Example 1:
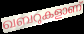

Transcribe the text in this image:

ഖബറുകളാണ്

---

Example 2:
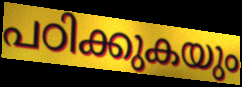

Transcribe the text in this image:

പഠിക്കുകയും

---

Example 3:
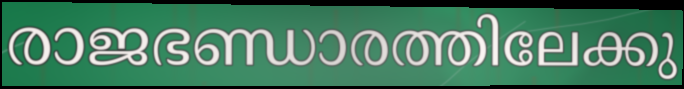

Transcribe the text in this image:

രാജഭണ്ഡാരത്തിലേക്കു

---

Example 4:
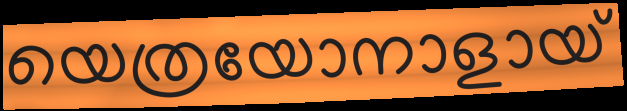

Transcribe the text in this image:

യെത്രയോനാളായ്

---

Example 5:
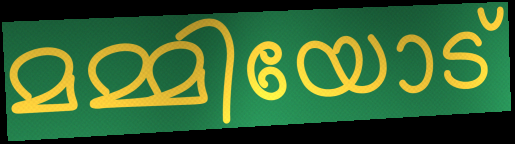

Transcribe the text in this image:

മമ്മിയോട്